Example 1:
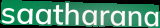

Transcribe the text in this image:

saatharana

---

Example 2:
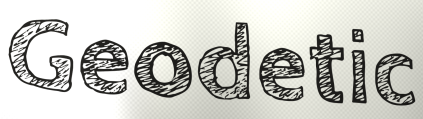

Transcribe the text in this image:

Geodetic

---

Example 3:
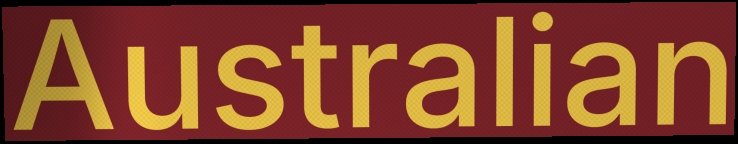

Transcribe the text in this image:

Australian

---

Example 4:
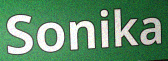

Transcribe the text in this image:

Sonika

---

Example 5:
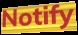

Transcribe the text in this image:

Notify